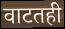
वाटतही